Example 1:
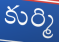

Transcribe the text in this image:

కుర్మి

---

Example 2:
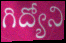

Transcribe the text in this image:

గిద్యోని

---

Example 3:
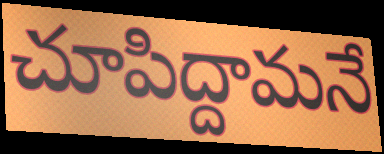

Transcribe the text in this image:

చూపిద్దామనే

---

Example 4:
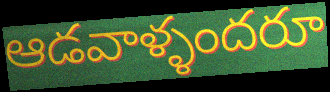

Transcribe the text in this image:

ఆడవాళ్ళందరూ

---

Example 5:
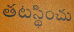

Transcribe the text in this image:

తటస్థించు